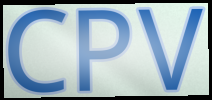
CPV